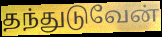
தந்துடுவேன்